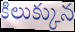
కిలుక్కున